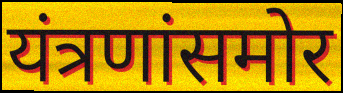
यंत्रणांसमोर